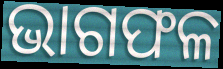
ଭାଗଫଳ